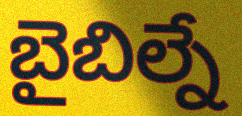
బైబిల్నే